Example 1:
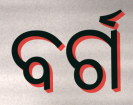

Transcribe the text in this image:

ବର୍ଗ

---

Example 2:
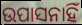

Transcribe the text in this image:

ଉପାସନାହିଁ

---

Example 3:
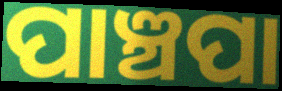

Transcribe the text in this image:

ପାଞ୍ଚପା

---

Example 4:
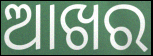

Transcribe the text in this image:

ଆଖର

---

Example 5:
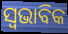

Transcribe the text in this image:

ସ୍ୱଭାବିକ